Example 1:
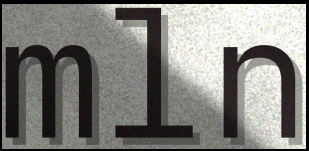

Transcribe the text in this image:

mln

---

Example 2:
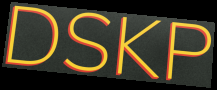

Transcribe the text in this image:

DSKP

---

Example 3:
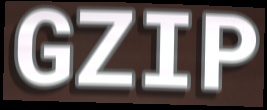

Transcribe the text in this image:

GZIP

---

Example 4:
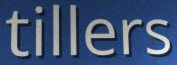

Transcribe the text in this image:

tillers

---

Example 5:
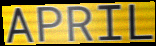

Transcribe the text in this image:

APRIL